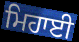
ਮਿਹਾਈ